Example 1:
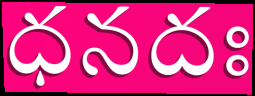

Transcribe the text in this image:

ధనదః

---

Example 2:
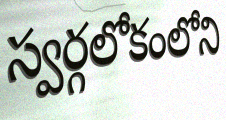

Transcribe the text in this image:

స్వర్గలోకంలోని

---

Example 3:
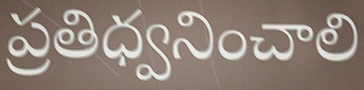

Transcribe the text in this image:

ప్రతిధ్వనించాలి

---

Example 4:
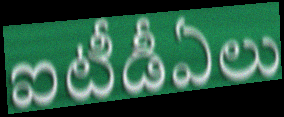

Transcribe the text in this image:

ఐటీడీఏలు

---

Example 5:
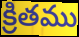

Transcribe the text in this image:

క్రితము